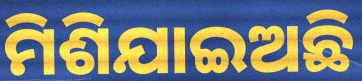
ମିଶିଯାଇଅଛି